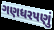
ગણધરપણું